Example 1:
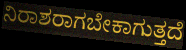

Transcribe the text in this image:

ನಿರಾಶರಾಗಬೇಕಾಗುತ್ತದೆ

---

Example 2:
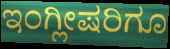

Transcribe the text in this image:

ಇಂಗ್ಲೀಷರಿಗೂ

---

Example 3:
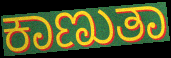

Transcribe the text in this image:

ಕಾಣುತಾ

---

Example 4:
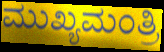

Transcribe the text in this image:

ಮುಖ್ಯಮಂತ್ರಿ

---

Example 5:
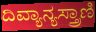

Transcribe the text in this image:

ದಿವ್ಯಾನ್ಯಸ್ತ್ರಾಣಿ